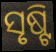
ସୃଷ୍ଟି